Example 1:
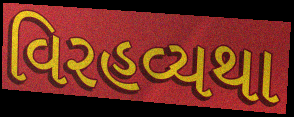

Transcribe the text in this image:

વિરહવ્યથા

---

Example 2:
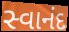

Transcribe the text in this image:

સ્વાનંદ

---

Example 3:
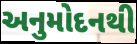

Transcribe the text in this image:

અનુમોદનથી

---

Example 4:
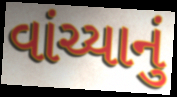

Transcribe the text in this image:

વાંચ્યાનું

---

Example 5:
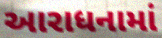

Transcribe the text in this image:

આરાધનામાં